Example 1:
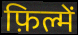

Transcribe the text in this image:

फ़िल्में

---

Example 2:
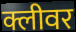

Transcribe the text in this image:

क्लीवर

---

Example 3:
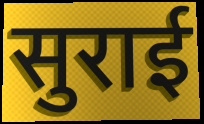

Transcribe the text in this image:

सुराई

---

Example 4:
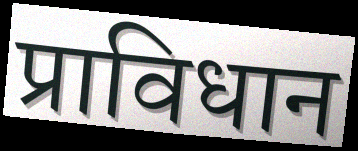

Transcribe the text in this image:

प्राविधान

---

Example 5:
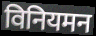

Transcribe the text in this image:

विनियमन